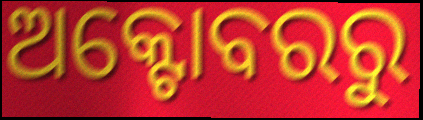
ଅକ୍ଟୋବରରୁ